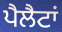
ਪੈਲੈਟਾਂ